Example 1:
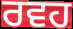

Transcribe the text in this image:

ਰਵਹ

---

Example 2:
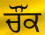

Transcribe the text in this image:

ਚੌੱਕ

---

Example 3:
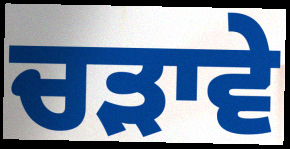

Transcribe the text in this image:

ਚੜਾਵੇ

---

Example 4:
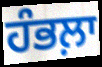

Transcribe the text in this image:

ਹੰਭਲ਼ਾ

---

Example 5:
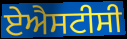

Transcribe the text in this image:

ਏਐਸਟੀਸੀ